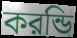
করন্ডি